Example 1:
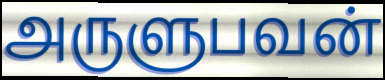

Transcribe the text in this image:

அருளுபவன்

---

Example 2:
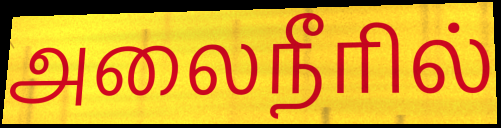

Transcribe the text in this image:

அலைநீரில்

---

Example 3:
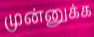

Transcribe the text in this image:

முன்னுக்க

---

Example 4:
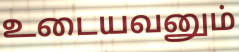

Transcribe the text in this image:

உடையவனும்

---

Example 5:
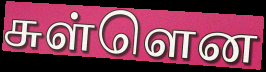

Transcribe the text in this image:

சுள்ளென